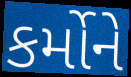
કર્મોને